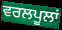
ਵਰਲਪੂਲਾਂ